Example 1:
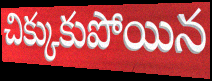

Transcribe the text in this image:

చిక్కుకుపోయిన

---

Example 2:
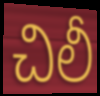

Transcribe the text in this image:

చిలీ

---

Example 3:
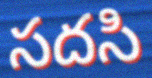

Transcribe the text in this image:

సదసి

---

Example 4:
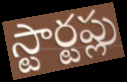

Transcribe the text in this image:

స్టార్టప్లు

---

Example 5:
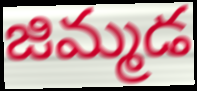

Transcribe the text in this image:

జిమ్మడ